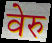
वेरु